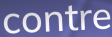
contre